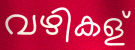
വഴികള്